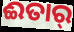
ଈତାର୍